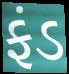
ફંડ